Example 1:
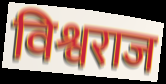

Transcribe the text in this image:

विश्वराज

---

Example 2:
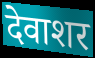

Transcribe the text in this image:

देवाशर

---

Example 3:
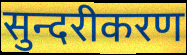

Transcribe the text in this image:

सुन्दरीकरण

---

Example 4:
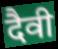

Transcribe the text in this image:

दैवी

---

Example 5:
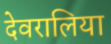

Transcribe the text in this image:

देवरालिया